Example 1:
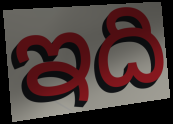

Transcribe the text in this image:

ఇది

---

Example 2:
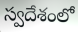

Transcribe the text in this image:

స్వదేశంలో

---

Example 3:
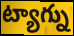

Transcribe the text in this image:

ట్యాగ్ను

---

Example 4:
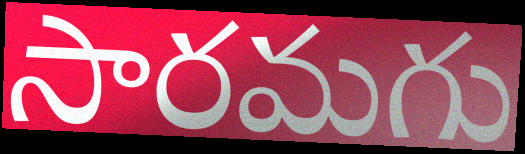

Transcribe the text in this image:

సారమగు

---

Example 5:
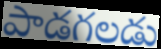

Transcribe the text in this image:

పాడగలడు